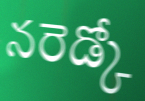
నరెడ్కో